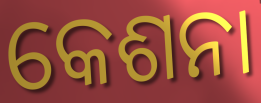
କେଶନା